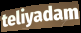
teliyadam